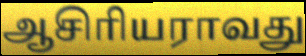
ஆசிரியராவது